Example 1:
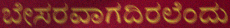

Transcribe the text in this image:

ಬೇಸರವಾಗದಿರಲೆಂದು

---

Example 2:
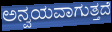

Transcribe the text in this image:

ಅನ್ವಯವಾಗುತ್ತದೆ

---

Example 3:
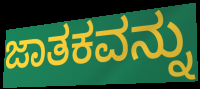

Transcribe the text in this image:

ಜಾತಕವನ್ನು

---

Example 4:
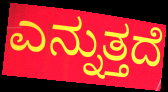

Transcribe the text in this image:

ಎನ್ನುತ್ತದೆ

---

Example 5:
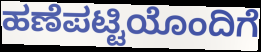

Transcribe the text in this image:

ಹಣೆಪಟ್ಟಿಯೊಂದಿಗೆ